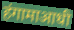
हंगामाआधी